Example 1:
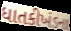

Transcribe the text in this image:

ધાતકીખંડના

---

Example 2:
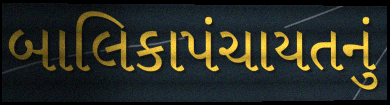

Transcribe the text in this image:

બાલિકાપંચાયતનું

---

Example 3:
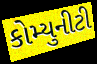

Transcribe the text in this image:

કોમ્યુનીટી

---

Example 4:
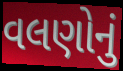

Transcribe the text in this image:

વલણોનું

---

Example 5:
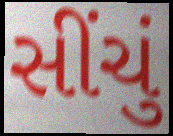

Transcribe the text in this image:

સીંચું